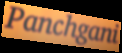
Panchgani